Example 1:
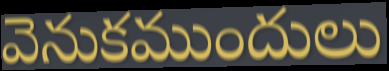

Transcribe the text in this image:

వెనుకముందులు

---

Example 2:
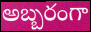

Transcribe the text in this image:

అబ్బరంగా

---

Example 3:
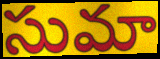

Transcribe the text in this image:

సుమా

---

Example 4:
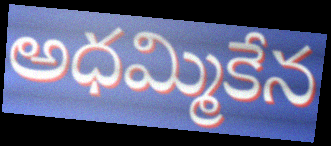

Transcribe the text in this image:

అధమ్మికేన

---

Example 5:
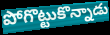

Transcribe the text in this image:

పోగొట్టుకొన్నాడు